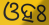
ଓହଃ